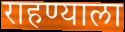
राहण्याला